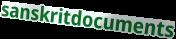
sanskritdocuments